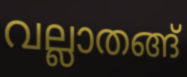
വല്ലാതങ്ങ്